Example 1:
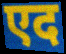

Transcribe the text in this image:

एद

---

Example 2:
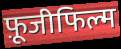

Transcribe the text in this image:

फ़ूजीफिल्म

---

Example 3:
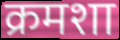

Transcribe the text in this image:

क्रमशा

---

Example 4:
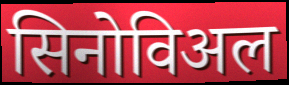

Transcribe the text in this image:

सिनोविअल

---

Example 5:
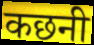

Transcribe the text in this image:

कछनी